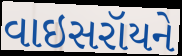
વાઇસરૉયને